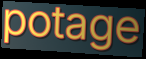
potage